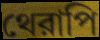
থেরাপি